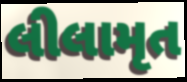
લીલામૃત